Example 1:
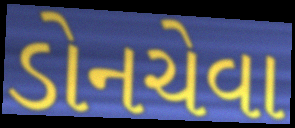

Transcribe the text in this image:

ડોનચેવા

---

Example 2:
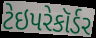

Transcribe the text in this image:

ટેઇપરેકૉર્ડર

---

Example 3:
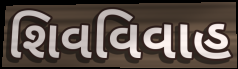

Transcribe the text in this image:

શિવવિવાહ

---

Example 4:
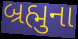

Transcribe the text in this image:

બ્રહ્મુના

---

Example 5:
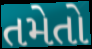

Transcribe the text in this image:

તમેતો